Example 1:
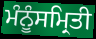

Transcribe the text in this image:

ਮੰਨੂੰਸਮ੍ਰਿਤੀ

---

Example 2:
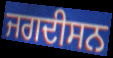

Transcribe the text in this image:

ਜਗਦੀਸਨ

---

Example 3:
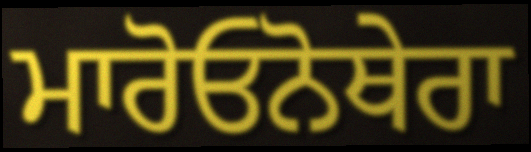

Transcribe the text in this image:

ਮਾਰੋਓਨੋਥੇਰਾ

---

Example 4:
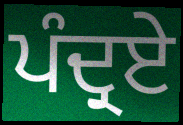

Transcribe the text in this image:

ਪੰਦ੍ਰਏ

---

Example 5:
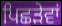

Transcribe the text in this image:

ਪਿਛੜੇਵਾਂ